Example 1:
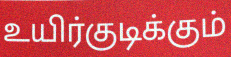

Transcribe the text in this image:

உயிர்குடிக்கும்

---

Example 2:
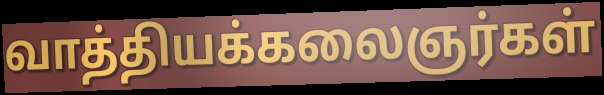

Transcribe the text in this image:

வாத்தியக்கலைஞர்கள்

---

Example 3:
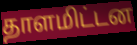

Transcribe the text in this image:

தாளமிட்டன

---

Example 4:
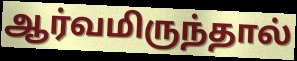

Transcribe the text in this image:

ஆர்வமிருந்தால்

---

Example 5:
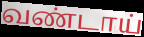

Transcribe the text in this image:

வண்டாய்